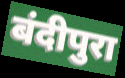
बंदीपुरा